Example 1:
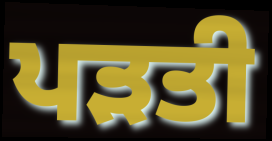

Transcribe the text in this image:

ਪੜਤੀ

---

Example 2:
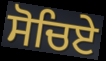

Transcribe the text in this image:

ਸੋਚਿਏ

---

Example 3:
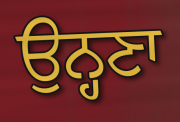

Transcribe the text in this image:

ਉਨ੍ਹਣਾ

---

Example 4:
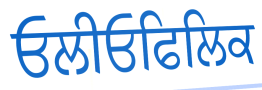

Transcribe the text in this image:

ਓਲੀਓਫਿਲਿਕ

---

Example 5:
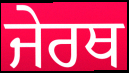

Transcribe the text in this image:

ਜੇਰਥ